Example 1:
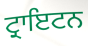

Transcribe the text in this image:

ਟ੍ਰਾਇਟਨ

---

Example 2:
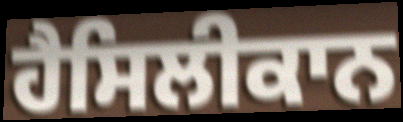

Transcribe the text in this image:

ਹੈਸਿਲੀਕਾਨ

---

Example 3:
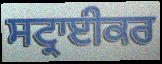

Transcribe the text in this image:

ਸਟ੍ਰਾਈਕਰ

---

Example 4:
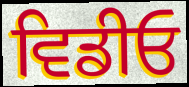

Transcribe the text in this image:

ਵਿਡੀਓ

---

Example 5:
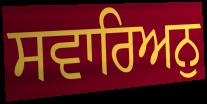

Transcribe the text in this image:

ਸਵਾਰਿਅਨੁ